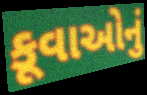
કૂવાઓનું